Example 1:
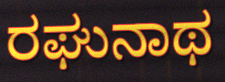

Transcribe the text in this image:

ರಘುನಾಥ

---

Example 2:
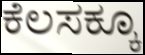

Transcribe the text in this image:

ಕೆಲಸಕ್ಕೂ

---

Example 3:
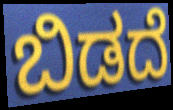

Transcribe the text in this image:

ಬಿಡದೆ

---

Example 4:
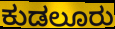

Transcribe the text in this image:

ಕುಡಲೂರು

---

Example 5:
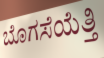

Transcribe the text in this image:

ಬೊಗಸೆಯೆತ್ತಿ